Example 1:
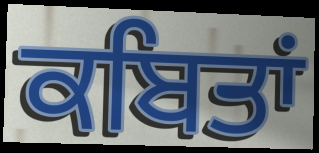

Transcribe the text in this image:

ਕਬਿਤਾਂ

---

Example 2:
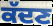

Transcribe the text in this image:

ਕੱਦਣ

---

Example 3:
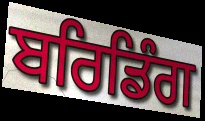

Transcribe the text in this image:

ਬਰਿਡਿੰਗ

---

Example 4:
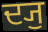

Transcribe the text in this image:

ਦ੍ਯੁ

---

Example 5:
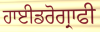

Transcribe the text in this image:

ਹਾਈਡਰੋਗ੍ਰਾਫੀ